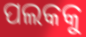
ପଲକକୁ